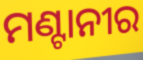
ମଣ୍ଟାନୀର